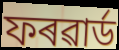
ফৰৱাৰ্ড